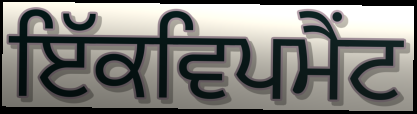
ਇੱਕਵਿਪਮੈਂਟ